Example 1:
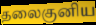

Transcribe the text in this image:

தலைகுனிய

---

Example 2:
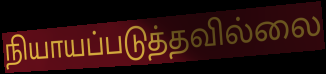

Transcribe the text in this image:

நியாயப்படுத்தவில்லை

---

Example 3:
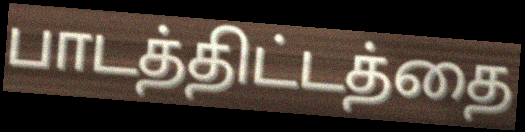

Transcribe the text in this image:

பாடத்திட்டத்தை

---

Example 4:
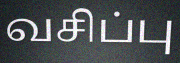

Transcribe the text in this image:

வசிப்பு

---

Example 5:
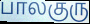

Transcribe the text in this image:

பாலகுரு